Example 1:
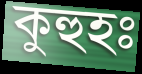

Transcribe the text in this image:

কুহুহঃ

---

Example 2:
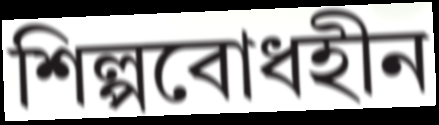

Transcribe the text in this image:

শিল্পবোধহীন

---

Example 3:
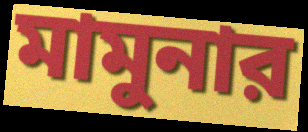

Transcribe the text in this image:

মামুনার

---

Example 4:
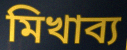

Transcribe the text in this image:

মিখাব্য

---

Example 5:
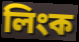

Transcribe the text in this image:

লিংক